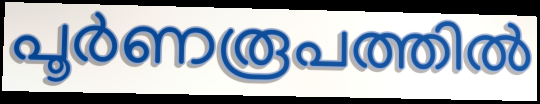
പൂർണരൂപത്തിൽ